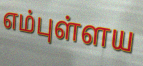
எம்புள்ளய